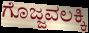
ಗೊಜ್ಜವಲಕ್ಕಿ